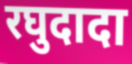
रघुदादा